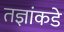
तज्ञांकडे